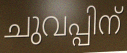
ചുവപ്പിന്